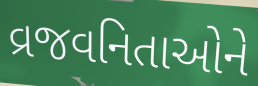
વ્રજવનિતાઓને